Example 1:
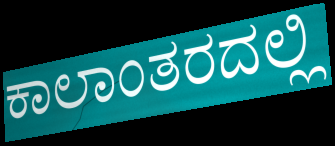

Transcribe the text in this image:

ಕಾಲಾಂತರದಲ್ಲಿ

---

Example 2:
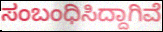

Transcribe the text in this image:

ಸಂಬಂಧಿಸಿದ್ದಾಗಿವೆ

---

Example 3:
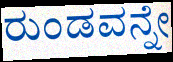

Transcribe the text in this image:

ರುಂಡವನ್ನೇ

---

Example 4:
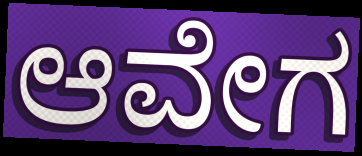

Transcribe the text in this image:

ಆವೇಗ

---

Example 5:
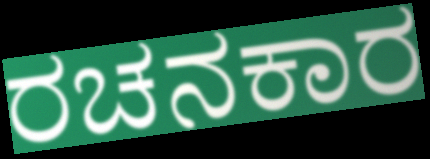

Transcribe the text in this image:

ರಚನಕಾರ